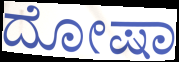
ದೋಷಾ